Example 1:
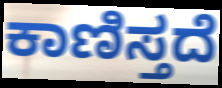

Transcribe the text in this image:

ಕಾಣಿಸ್ತದೆ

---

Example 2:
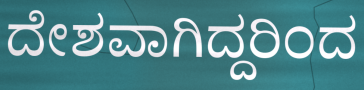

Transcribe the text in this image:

ದೇಶವಾಗಿದ್ದರಿಂದ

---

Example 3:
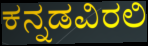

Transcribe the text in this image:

ಕನ್ನಡವಿರಲಿ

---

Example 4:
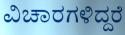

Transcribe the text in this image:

ವಿಚಾರಗಳಿದ್ದರೆ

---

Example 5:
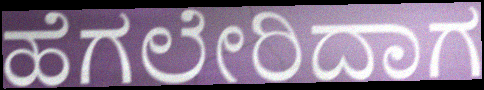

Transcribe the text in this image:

ಹೆಗಲೇರಿದಾಗ